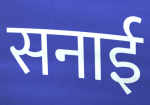
सनाई